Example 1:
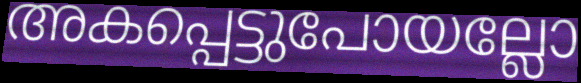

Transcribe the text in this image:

അകപ്പെട്ടുപോയല്ലോ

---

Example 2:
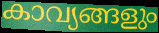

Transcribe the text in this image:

കാവ്യങ്ങളും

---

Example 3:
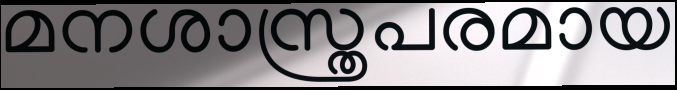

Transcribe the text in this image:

മനശാസ്ത്രപരമായ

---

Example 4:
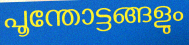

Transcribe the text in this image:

പൂന്തോട്ടങ്ങളും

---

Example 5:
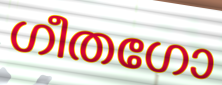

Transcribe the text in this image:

ഗീതഗോ